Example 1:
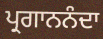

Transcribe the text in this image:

ਪ੍ਰਗਾਨਨੰਦਾ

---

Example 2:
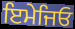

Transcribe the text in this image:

ਇਮੇਜਿਓ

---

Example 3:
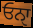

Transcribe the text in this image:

ਓਨਾੑ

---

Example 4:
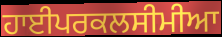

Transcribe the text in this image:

ਹਾਈਪਰਕਲਸੀਮੀਆ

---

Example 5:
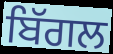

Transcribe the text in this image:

ਬਿੱਗਲ